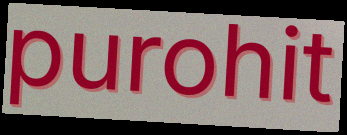
purohit